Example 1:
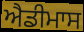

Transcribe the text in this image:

ਐਡੀਮਾਸ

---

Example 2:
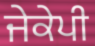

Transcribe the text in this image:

ਜੇਕੇਪੀ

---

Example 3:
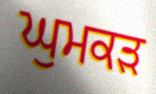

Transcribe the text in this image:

ਘੁਮਕੜ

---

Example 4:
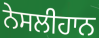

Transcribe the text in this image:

ਨੇਸਲੀਹਾਨ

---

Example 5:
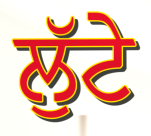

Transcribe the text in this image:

ਲੁੱਟੇ